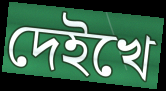
দেইখে